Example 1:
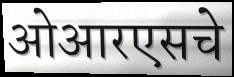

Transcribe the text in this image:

ओआरएसचे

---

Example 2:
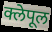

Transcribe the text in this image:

क्लेपूल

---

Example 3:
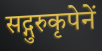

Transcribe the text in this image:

सद्गुरुकृपेनें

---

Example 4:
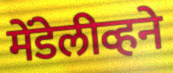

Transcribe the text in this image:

मेंडेलीव्हने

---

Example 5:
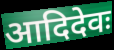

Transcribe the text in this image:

आदिदेवः